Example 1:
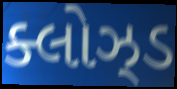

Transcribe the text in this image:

ક્લોઝ્ડ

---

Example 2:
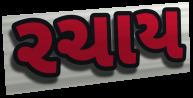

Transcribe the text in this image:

રચાય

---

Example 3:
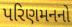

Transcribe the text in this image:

પરિણમનનો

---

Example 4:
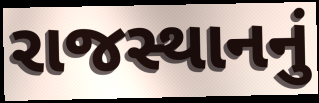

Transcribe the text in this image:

રાજસ્થાનનું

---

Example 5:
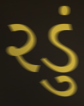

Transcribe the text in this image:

રડું